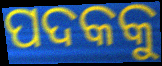
ପଦକକୁ